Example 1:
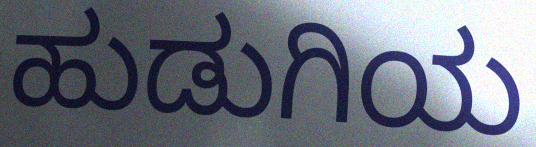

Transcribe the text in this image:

ಹುಡುಗಿಯ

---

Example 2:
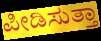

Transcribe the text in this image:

ಪೀಡಿಸುತ್ತಾ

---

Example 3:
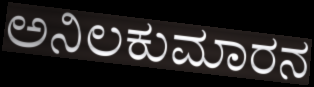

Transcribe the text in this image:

ಅನಿಲಕುಮಾರನ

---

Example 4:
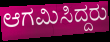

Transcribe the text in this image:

ಆಗಮಿಸಿದ್ದರು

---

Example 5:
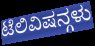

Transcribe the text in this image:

ಟೆಲಿವಿಷನ್ಗಳು